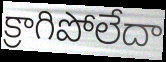
క్రాగిపోలేదా